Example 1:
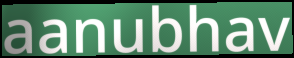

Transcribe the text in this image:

aanubhav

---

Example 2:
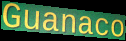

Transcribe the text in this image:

Guanaco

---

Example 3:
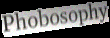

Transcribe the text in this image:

Phobosophy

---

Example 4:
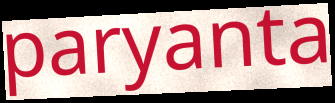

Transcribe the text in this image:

paryanta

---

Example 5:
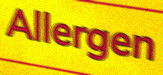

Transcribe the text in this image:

Allergen